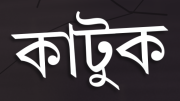
কাটুক